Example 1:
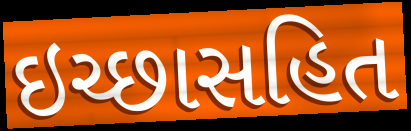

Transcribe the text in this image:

ઇચ્છાસહિત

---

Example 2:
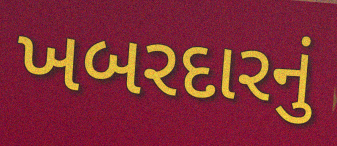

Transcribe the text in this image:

ખબરદારનું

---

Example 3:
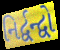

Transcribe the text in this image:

નિર્દ્વન્દ્વો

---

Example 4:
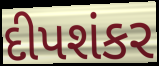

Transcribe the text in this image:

દીપશંકર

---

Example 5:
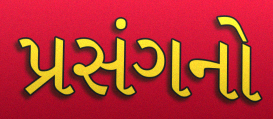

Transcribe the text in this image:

પ્રસંગનો